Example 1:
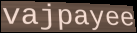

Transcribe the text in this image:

vajpayee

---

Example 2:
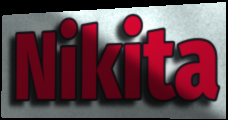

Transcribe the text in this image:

Nikita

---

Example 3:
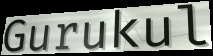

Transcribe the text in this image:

Gurukul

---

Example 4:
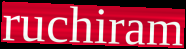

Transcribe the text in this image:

ruchiram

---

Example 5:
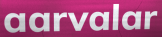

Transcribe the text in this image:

aarvalar